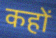
कहों